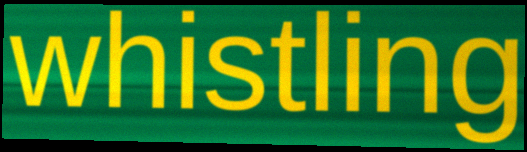
whistling